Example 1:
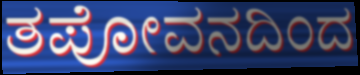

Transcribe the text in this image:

ತಪೋವನದಿಂದ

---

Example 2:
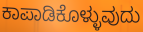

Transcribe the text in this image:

ಕಾಪಾಡಿಕೊಳ್ಳುವುದು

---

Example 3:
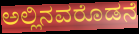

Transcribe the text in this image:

ಅಲ್ಲಿನವರೊಡನೆ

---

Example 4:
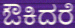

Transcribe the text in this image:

ಔಕಿದರೆ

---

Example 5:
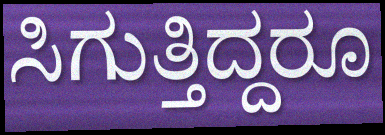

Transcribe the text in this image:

ಸಿಗುತ್ತಿದ್ದರೂ